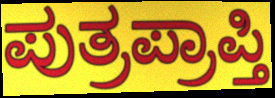
ಪುತ್ರಪ್ರಾಪ್ತಿ